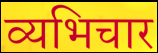
व्यभिचार